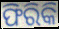
ଫିରିକି